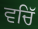
ਵਚਿੱ